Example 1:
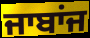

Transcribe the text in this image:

ਜਾਬਾਂਜ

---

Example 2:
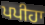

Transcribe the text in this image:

ਪਪੀਹਾ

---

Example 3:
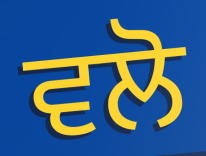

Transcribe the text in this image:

ਵਲੋ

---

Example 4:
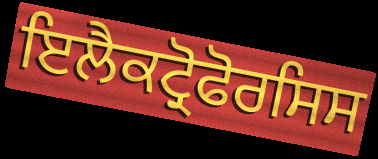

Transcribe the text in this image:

ਇਲੈਕਟ੍ਰੋਫੋਰਸਿਸ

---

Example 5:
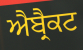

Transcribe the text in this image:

ਐਬ੍ਰੈਕਟ